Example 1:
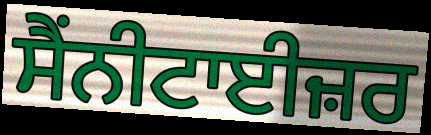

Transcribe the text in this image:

ਸੈਂਨੀਟਾਈਜ਼ਰ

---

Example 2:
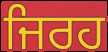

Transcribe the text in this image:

ਜਿਰਹ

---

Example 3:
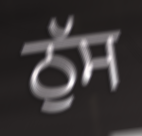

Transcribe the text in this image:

ਠੁੱਸ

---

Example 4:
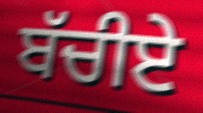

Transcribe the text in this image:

ਬੱਚੀਏ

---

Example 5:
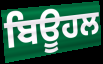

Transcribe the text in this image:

ਬਿਊਹਲ